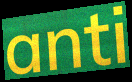
anti